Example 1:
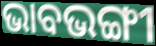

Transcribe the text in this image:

ଭାବଭଙ୍ଗୀ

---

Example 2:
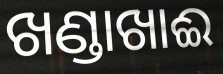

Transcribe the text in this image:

ଖଣ୍ଡାଖାଈ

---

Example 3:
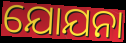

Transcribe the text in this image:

ଯୋଯନା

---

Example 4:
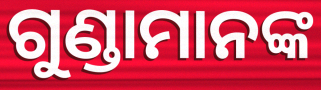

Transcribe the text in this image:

ଗୁଣ୍ଡାମାନଙ୍କ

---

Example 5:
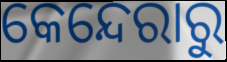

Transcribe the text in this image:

କେନ୍ଦେରାରୁ